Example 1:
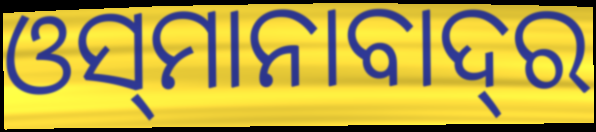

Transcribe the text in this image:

ଓସ୍‌ମାନାବାଦ୍‌ର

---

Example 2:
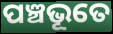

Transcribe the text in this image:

ପଞ୍ଚଭୂତେ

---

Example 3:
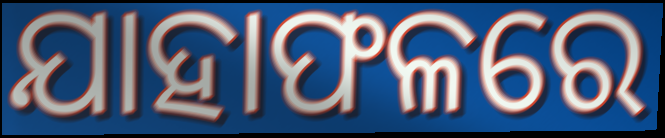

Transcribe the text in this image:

ଯାହାଫଳରେ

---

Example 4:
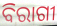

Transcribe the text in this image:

ବିରାଗୀ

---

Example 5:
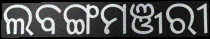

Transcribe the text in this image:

ଲବଙ୍ଗମଞ୍ଜରୀ